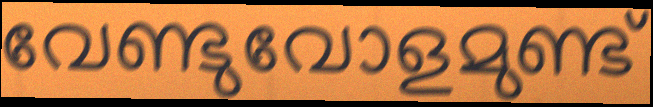
വേണ്ടുവോളമുണ്ട്